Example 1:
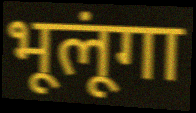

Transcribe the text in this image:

भूलूंगा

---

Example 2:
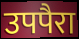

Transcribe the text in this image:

उपपैरा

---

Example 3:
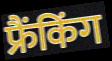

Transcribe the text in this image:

फ्रैंकिंग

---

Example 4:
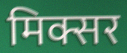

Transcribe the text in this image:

मिक्सर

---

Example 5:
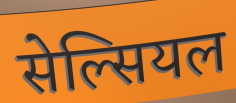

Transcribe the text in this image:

सेल्सियल